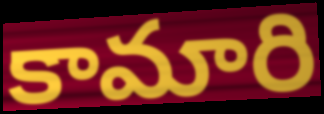
కామారి